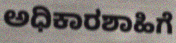
ಅಧಿಕಾರಶಾಹಿಗೆ